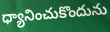
ధ్యానించుకొందును